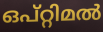
ഒപ്റ്റിമൽ